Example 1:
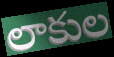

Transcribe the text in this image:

లాకుల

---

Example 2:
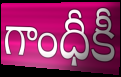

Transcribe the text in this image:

గాంధీకీ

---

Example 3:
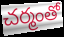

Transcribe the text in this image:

చర్మంతో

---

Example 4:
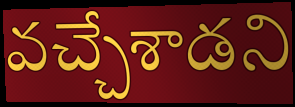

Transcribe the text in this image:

వచ్చేశాడని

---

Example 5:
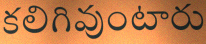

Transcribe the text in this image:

కలిగివుంటారు